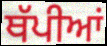
ਥੱਪੀਆਂ